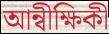
আন্বীক্ষিকী